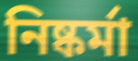
নিষ্কর্মা